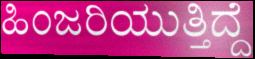
ಹಿಂಜರಿಯುತ್ತಿದ್ದೆ